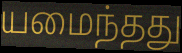
யமைந்தது